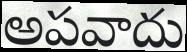
అపవాదు